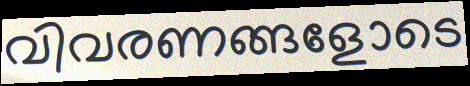
വിവരണങ്ങളോടെ